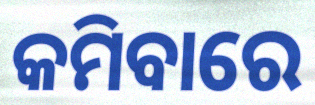
କମିବାରେ